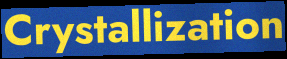
Crystallization